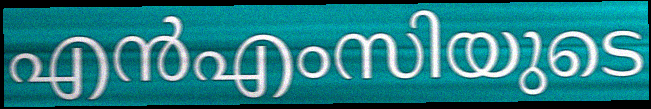
എൻഎംസിയുടെ